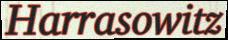
Harrasowitz